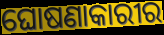
ଘୋଷଣାକାରୀର